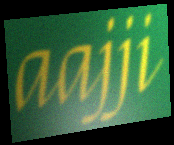
aajji